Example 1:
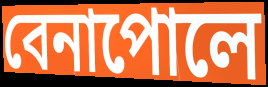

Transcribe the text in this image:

বেনাপোলে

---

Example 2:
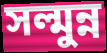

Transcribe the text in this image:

সল্মুন্ন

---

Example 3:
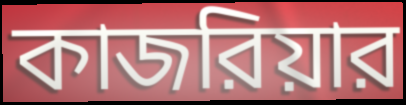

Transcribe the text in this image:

কাজরিয়ার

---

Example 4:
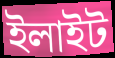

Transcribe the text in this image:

ইলাইট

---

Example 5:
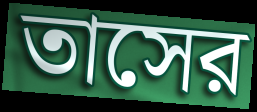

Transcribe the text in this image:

তাসের